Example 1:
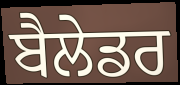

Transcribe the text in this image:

ਬੈਲੇਡਰ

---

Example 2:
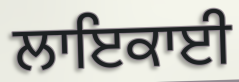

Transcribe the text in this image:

ਲਾਇਕਾਈ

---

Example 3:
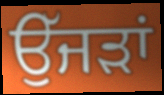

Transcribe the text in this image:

ਉੱਜੜਾਂ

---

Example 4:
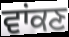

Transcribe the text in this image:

ਵਾਂਕਣ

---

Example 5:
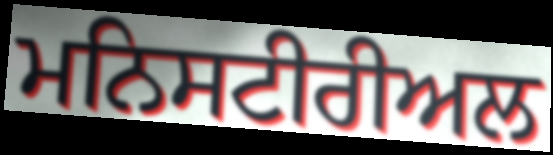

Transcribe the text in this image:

ਮਨਿਸਟੀਰੀਅਲ